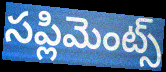
సప్లిమెంట్స్